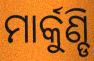
ମାର୍କୁଣ୍ଡି